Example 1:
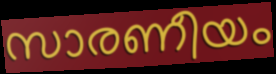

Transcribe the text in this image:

സാരണീയം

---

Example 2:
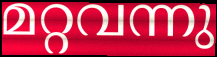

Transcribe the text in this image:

മറ്റവന്നു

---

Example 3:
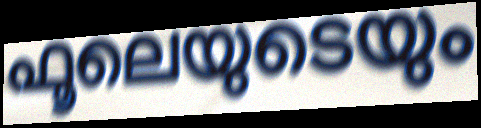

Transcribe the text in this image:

ഫൂലെയുടെയും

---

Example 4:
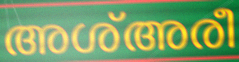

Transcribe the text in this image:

അശ്അരീ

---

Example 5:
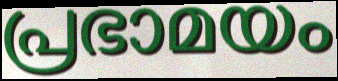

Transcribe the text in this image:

പ്രഭാമയം